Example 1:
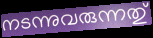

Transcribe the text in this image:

നടന്നുവരുന്നതു്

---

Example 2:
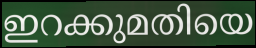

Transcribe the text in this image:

ഇറക്കുമതിയെ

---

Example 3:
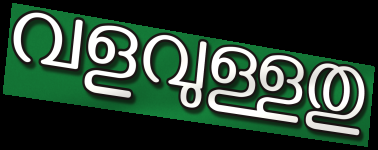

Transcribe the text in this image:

വളവുള്ളതു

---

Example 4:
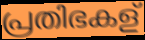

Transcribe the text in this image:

പ്രതിഭകള്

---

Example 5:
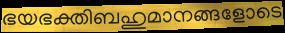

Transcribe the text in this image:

ഭയഭക്തിബഹുമാനങ്ങളോടെ